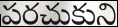
పరచుకుని